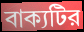
বাক্যটির